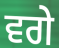
ਵਗੇ